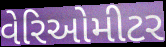
વેરિઓમીટર